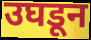
उघडून